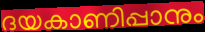
ദയകാണിപ്പാനും